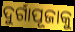
ଦୁର୍ଗାପୂଜାକୁ